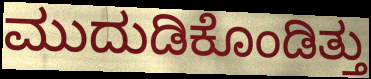
ಮುದುಡಿಕೊಂಡಿತ್ತು